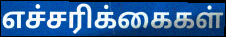
எச்சரிக்கைகள்